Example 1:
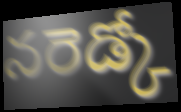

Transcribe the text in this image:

నరెడ్కో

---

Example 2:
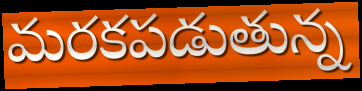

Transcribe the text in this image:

మరకపడుతున్న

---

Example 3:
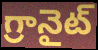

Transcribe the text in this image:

గ్రానైట్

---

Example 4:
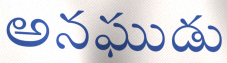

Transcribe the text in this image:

అనఘుడు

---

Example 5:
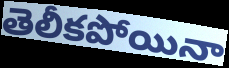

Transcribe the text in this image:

తెలీకపోయినా